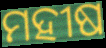
ମହୀଷ